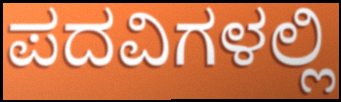
ಪದವಿಗಳಲ್ಲಿ